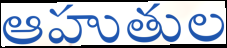
ఆహుతుల